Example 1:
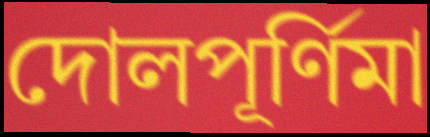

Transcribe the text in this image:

দোলপূর্ণিমা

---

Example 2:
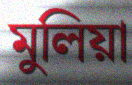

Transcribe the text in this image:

মুলিয়া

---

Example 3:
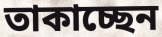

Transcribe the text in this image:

তাকাচ্ছেন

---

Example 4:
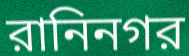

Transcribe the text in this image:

রানিনগর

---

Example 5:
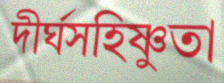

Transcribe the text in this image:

দীর্ঘসহিষ্ণুতা